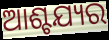
ଆଶ୍ଚଯ୍ୟର